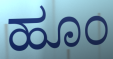
ಹೂಂ